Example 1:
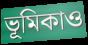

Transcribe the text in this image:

ভূমিকাও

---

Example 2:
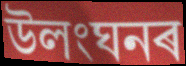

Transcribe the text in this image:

উলংঘনৰ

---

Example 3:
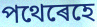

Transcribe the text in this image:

পথেৰেহে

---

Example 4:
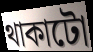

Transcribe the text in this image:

থাকাটো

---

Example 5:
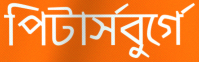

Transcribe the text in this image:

পিটাৰ্সবুৰ্গে